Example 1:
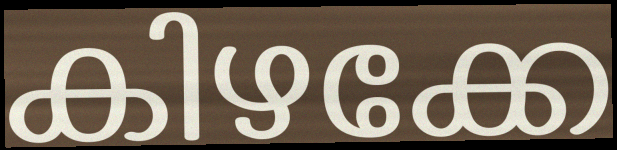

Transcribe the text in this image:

കിഴക്കേ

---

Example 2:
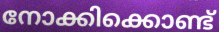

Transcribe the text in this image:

നോക്കിക്കൊണ്ട്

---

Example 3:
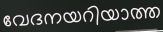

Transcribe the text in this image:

വേദനയറിയാത്ത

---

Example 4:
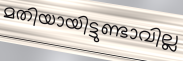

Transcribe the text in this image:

മതിയായിട്ടുണ്ടാവില്ല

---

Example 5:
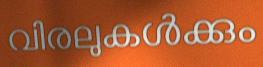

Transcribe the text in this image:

വിരലുകൾക്കും